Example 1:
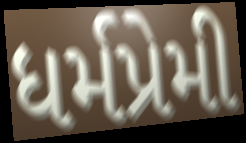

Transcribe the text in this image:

ધર્મપ્રેમી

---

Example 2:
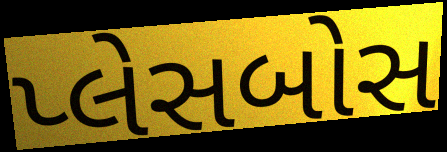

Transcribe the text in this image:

પ્લેસબોસ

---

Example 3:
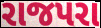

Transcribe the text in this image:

રાજપરા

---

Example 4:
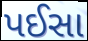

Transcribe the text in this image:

પઈસા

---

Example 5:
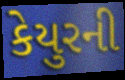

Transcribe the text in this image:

કેયુરની